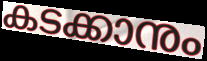
കടക്കാനും